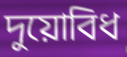
দুয়োবিধ